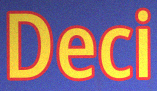
Deci